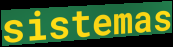
sistemas